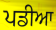
ਪਡੀਆ